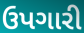
ઉપગારી